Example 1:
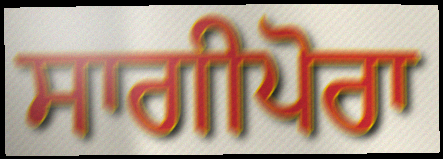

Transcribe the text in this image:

ਸਾਗੀਪੋਰਾ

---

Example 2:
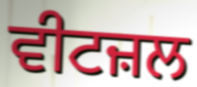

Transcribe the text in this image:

ਵੀਟਜ਼ਲ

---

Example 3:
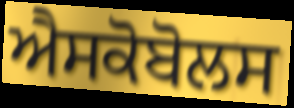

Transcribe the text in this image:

ਐਸਕੋਬੋਲਸ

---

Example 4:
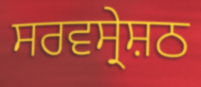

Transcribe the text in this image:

ਸਰਵਸ੍ਰੇਸ਼ਠ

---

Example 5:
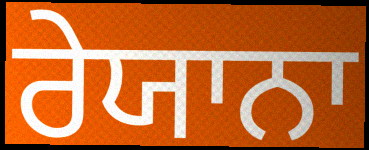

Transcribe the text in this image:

ਰੇਯਾਨਾ